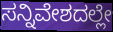
ಸನ್ನಿವೇಶದಲ್ಲೇ